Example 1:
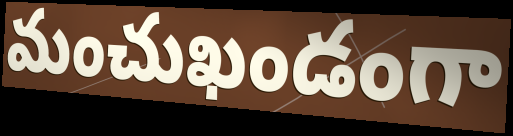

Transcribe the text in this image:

మంచుఖండంగా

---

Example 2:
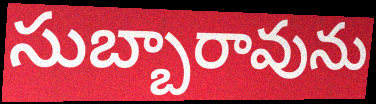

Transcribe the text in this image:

సుబ్బారావును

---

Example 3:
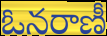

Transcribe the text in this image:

ఓనరాణీ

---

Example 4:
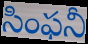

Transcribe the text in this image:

సింఫనీ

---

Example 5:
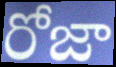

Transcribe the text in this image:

రోజా